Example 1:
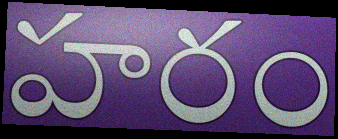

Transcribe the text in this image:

హరం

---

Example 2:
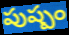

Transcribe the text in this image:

పుష్పం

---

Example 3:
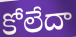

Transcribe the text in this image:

కోలేదా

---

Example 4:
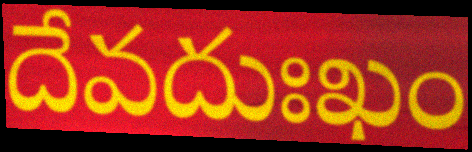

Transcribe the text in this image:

దేవదుఃఖం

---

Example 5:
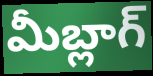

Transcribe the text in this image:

మీబ్లాగ్